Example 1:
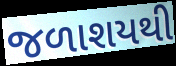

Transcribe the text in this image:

જળાશયથી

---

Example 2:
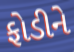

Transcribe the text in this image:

ફોડીને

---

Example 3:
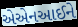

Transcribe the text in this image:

એએનઆઈને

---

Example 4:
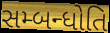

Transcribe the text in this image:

સમ્બન્ધોતિ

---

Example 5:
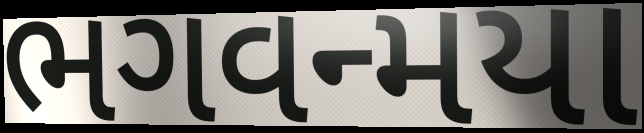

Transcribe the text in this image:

ભગવન્મયા